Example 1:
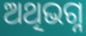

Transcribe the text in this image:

ଅଥିଭଗ୍ନ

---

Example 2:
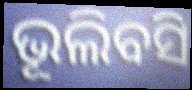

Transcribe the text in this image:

ଭୂଲିବସି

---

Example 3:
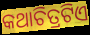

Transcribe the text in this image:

କଥାଚିତ୍ରଟିଏ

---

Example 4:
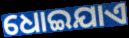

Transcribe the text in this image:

ଧୋଇଯାଏ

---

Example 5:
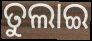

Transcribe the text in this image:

ତୁଲାଇ